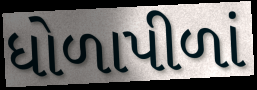
ધોળાપીળાં